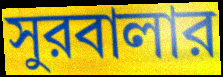
সুরবালার